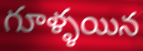
గూళ్ళయిన